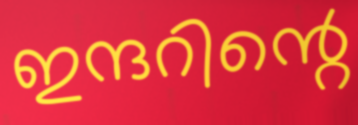
ഇന്ദറിന്റെ